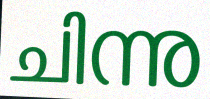
ചിന്നു